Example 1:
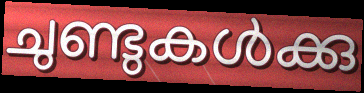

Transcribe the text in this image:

ചുണ്ടുകൾക്കു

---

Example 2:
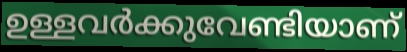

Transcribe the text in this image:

ഉള്ളവർക്കുവേണ്ടിയാണ്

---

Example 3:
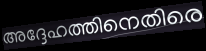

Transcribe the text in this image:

അദ്ദേഹത്തിനെതിരെ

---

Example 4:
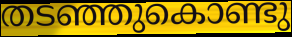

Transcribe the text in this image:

തടഞ്ഞുകൊണ്ടു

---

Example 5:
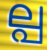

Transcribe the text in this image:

ല്പ